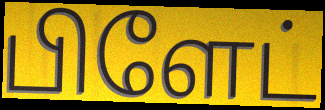
பிளேட்